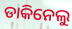
ଡାକିନେଲୁ